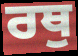
ਰਥੁ